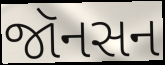
જૉનસન